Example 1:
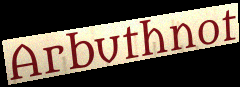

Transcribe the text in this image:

Arbuthnot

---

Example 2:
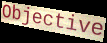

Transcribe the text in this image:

Objective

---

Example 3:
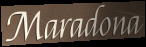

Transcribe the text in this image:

Maradona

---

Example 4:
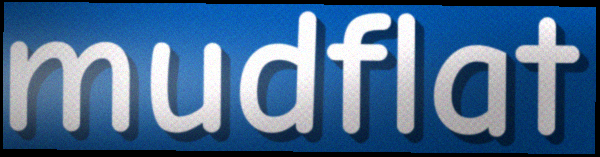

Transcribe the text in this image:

mudflat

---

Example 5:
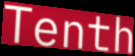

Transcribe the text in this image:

Tenth